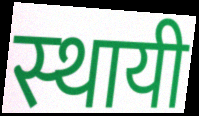
स्‍थायी